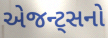
એજન્ટ્સનો